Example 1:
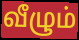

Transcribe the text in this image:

வீழும்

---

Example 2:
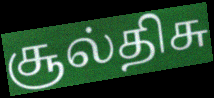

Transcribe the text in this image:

சூல்திசு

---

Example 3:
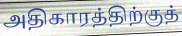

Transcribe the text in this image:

அதிகாரத்திற்குத்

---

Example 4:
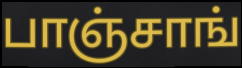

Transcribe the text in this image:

பாஞ்சாங்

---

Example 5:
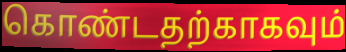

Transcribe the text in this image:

கொண்டதற்காகவும்